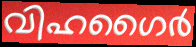
വിഹഗൈർ